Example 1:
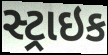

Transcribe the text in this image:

સ્ટ્રાઇક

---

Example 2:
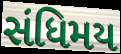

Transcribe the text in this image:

સંધિમય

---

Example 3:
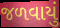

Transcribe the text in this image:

જળવાયું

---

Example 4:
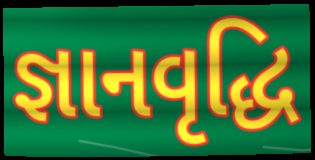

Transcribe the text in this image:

જ્ઞાનવૃદ્ધિ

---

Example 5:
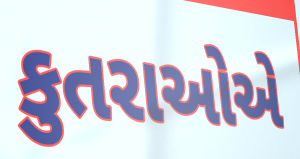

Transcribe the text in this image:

કુતરાઓએ